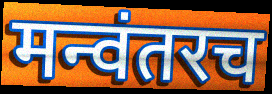
मन्वंतरच